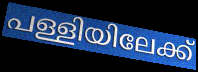
പള്ളിയിലേക്ക്